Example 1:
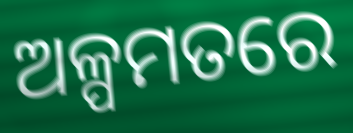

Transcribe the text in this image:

ଅଳ୍ପମତରେ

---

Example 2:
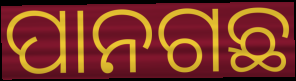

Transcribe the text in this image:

ପାନଗଛ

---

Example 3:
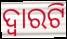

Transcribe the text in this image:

ଦ୍ୱାରଟି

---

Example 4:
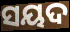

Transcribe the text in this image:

ସୟଦ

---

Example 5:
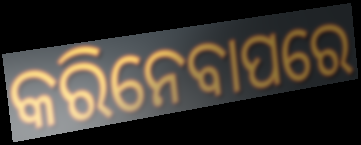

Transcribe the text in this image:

କରିନେବାପରେ